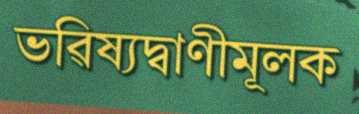
ভৱিষ্যদ্বাণীমূলক